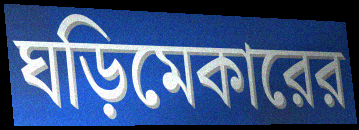
ঘড়িমেকারের